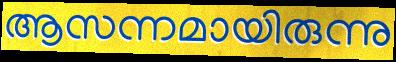
ആസന്നമായിരുന്നു